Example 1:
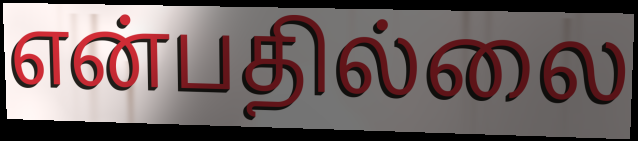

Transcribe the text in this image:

என்பதில்லை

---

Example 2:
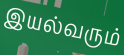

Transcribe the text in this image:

இயல்வரும்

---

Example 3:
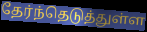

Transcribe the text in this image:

தேர்ந்தெடுத்துள்ள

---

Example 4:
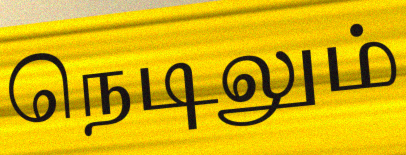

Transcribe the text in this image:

நெடிலும்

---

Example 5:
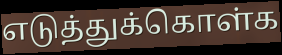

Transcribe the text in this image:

எடுத்துக்கொள்க